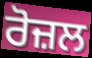
ਰੋਜ਼ਲ